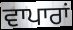
ਵਾਪਾਰਾਂ